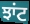
ਝਾਂਟ